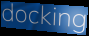
docking